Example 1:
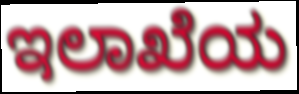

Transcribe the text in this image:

ಇಲಾಖೆಯ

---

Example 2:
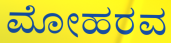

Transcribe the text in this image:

ಮೋಹರವ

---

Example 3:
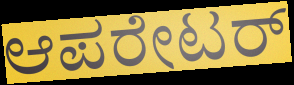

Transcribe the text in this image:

ಆಪರೇಟರ್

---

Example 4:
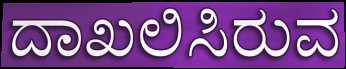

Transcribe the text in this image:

ದಾಖಲಿಸಿರುವ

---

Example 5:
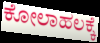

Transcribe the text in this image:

ಕೋಲಾಹಲಕ್ಕೆ